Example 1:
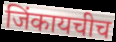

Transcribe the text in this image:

जिंकायचीच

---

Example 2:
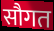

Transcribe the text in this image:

सौगत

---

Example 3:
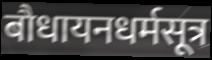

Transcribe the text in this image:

बौधायनधर्मसूत्र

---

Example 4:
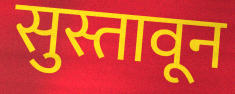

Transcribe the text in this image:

सुस्तावून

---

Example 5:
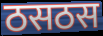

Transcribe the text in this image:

ठसठस